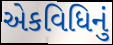
એકવિધિનું